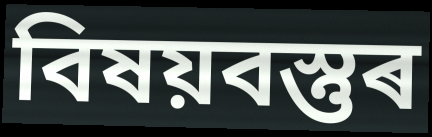
বিষয়বস্তুৰ